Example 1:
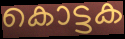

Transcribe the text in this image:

കൊട്ടക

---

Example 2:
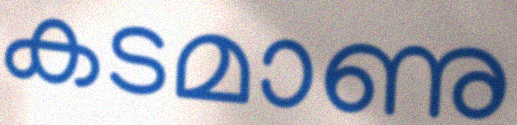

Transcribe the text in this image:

കടമാണു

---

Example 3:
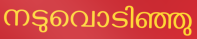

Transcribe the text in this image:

നടുവൊടിഞ്ഞു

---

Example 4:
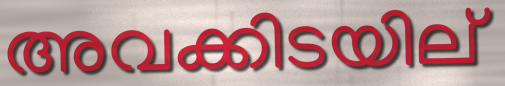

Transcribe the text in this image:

അവക്കിടയില്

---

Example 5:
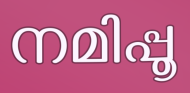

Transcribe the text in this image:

നമിപ്പൂ